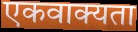
एकवाक्यता